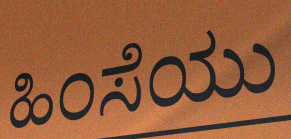
ಹಿಂಸೆಯು